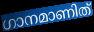
ഗാനമാണിത്